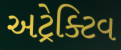
અટ્રેક્ટિવ